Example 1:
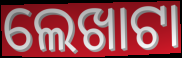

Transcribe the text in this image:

ଲେଖାଟା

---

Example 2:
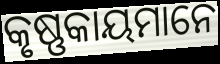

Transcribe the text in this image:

କୃଷ୍ଣକାୟମାନେ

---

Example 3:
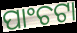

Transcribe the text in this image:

ପାଂଚଟା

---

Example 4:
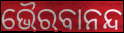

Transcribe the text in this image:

ଭୈରବାନନ୍ଦ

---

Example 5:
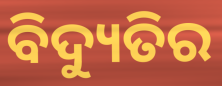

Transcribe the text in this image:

ବିଦ୍ୟୁତିର